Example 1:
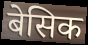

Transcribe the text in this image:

बेसिक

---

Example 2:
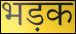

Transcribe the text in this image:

भड़क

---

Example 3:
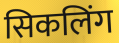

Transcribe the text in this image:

सिकलिंग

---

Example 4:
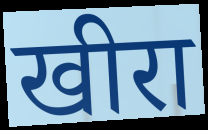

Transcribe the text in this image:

खीरा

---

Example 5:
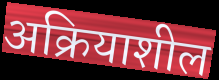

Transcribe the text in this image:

अक्रियाशील